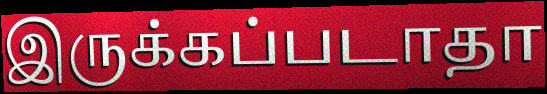
இருக்கப்படாதா